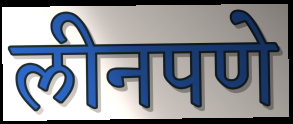
लीनपणे